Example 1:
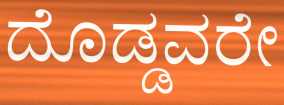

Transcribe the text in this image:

ದೊಡ್ಡವರೇ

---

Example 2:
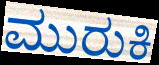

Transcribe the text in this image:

ಮುರುಕಿ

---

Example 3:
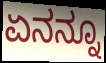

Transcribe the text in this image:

ಏನನ್ನೂ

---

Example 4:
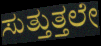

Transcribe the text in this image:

ಸುತ್ತುತ್ತಲೇ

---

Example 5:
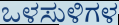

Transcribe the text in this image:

ಒಳಸುಳಿಗಳ